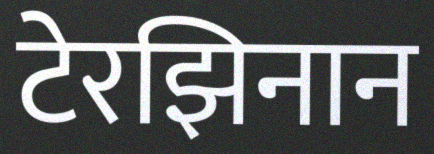
टेरझिनान